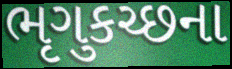
ભૃગુકચ્છના